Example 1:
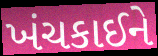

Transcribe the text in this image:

ખંચકાઈને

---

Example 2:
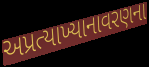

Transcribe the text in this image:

અપ્રત્યાખ્યાનાવરણના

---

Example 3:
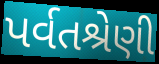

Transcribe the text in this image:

પર્વતશ્રેણી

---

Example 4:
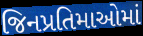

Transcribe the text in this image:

જિનપ્રતિમાઓમાં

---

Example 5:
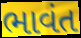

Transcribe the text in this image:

ભાવંત